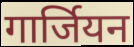
गार्जियन